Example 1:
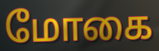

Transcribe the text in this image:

மோகை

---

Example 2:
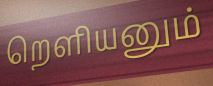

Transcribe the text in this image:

றெளியனும்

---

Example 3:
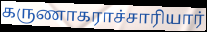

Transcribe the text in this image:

கருணாகராச்சாரியார்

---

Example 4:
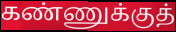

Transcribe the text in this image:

கண்ணுக்குத்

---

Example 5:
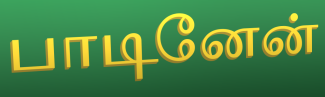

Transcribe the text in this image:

பாடினேன்